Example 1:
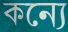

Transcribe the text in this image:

কন্যে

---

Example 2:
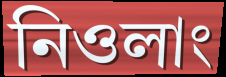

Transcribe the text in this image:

নিওলাং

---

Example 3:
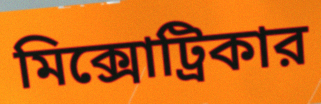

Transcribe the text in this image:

মিক্সোট্রিকার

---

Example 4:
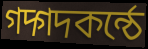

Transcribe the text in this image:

গদ্গদকন্ঠে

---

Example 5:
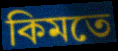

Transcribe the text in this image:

কিমতে